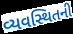
વ્યવસ્થિતની